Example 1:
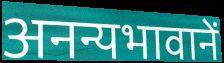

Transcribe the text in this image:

अनन्यभावानें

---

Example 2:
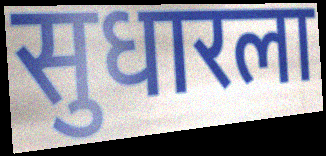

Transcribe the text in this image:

सुधारला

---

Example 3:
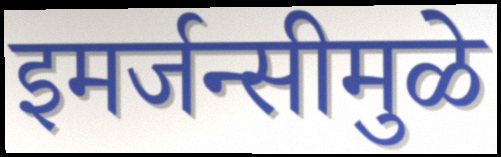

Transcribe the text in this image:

इमर्जन्सीमुळे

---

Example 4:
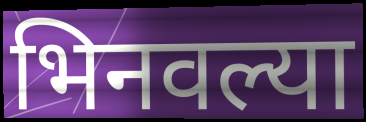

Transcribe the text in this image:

भिनवल्या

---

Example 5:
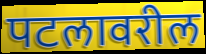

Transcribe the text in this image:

पटलावरील